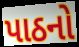
પાઠનો